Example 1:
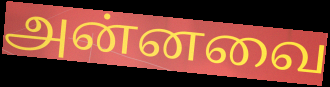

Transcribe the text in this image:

அன்னவை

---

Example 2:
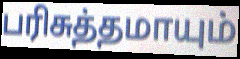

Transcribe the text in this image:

பரிசுத்தமாயும்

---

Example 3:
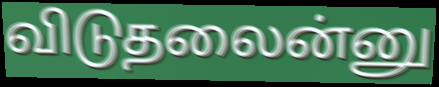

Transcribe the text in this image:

விடுதலைன்னு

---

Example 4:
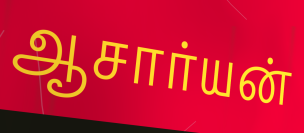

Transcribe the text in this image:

ஆசார்யன்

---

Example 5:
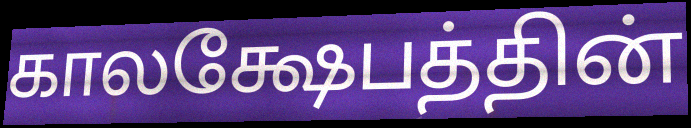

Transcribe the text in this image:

காலக்ஷேபத்தின்